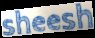
sheesh